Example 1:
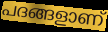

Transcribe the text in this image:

പദങ്ങളാണ്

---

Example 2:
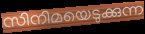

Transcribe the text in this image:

സിനിമയെടുക്കുന്ന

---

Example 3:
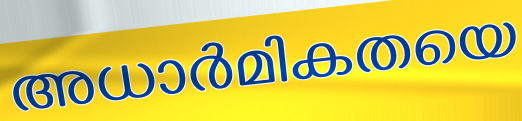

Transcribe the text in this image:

അധാർമികതയെ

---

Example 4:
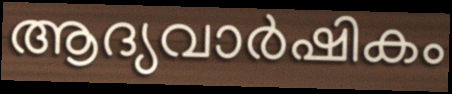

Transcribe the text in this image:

ആദ്യവാർഷികം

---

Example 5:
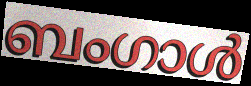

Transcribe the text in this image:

ബംഗാൾ